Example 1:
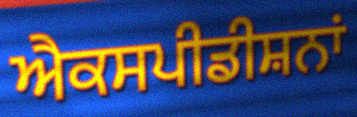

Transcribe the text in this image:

ਐਕਸਪੀਡੀਸ਼ਨਾਂ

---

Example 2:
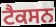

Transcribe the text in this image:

ਟੈਕਸਨ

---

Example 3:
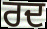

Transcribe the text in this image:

ਰਦ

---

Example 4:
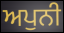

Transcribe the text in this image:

ਅਪੁਨੀ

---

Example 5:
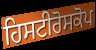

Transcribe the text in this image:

ਹਿਸਟੀਰੋਸਕੋਪ